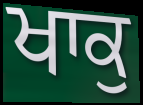
ਖਾਕੁ